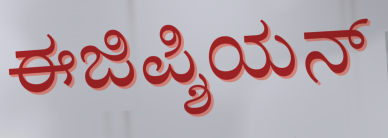
ಈಜಿಪ್ಶಿಯನ್